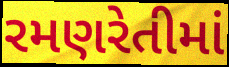
રમણરેતીમાં